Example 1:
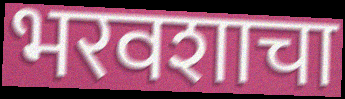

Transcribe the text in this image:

भरवशाचा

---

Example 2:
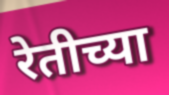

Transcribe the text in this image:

रेतीच्या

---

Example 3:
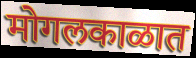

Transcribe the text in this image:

मोगलकाळात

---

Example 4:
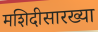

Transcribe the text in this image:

मशिदीसारख्या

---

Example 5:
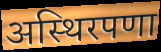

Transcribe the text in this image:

अस्थिरपणा